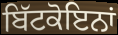
ਬਿੱਟਕੋਇਨਾਂ